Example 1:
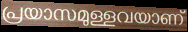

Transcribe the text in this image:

പ്രയാസമുള്ളവയാണ്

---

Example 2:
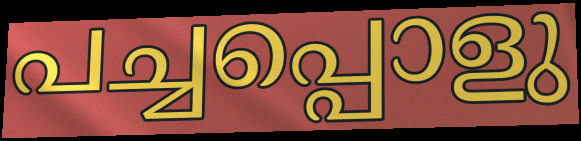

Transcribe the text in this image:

പച്ചപ്പൊളു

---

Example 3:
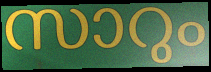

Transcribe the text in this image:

സാറും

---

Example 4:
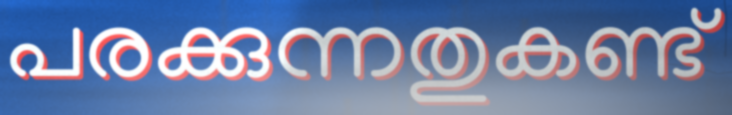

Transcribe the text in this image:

പരക്കുന്നതുകണ്ട്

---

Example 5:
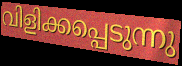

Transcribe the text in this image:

വിളിക്കപ്പെടുന്നു